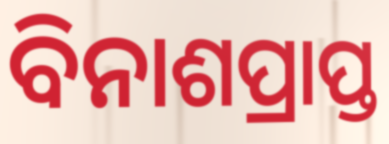
ବିନାଶପ୍ରାପ୍ତ